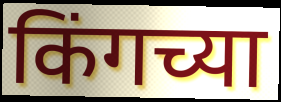
किंगच्या